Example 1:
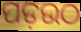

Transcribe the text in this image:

ପଡ଼ଉଠ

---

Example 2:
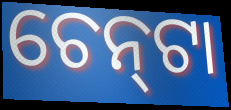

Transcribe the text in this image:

ଚେନ୍‌ଟା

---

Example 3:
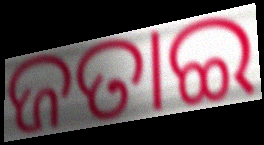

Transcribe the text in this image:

ଜତାଇ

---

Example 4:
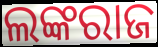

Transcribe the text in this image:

ଲଙ୍କରାଜ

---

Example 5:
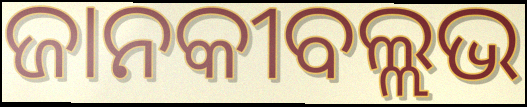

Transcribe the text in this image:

ଜାନକୀବଲ୍ଲଭ